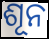
ଶୂନ